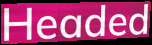
Headed